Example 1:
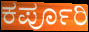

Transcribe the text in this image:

ಕರ್ಪೂರಿ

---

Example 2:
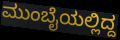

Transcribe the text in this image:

ಮುಂಬೈಯಲ್ಲಿದ್ದ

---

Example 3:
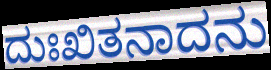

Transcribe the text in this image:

ದುಃಖಿತನಾದನು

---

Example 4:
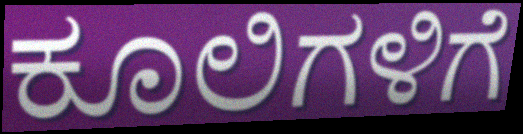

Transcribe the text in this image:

ಕೂಲಿಗಳಿಗೆ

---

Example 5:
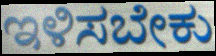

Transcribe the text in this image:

ಇಳಿಸಬೇಕು